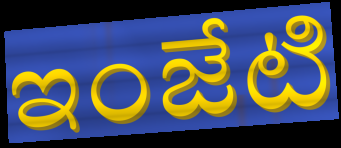
ఇంజేటి